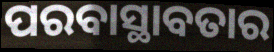
ପରବାସ୍ଥାବତାର